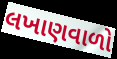
લખાણવાળો